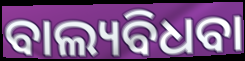
ବାଲ୍ୟବିଧବା